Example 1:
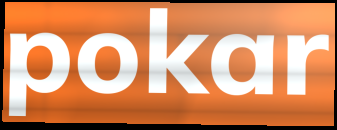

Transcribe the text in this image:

pokar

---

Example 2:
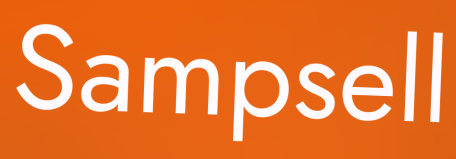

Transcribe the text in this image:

Sampsell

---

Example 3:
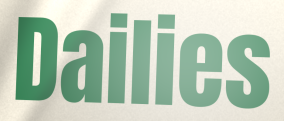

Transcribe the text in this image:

Dailies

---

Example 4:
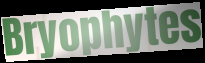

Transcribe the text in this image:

Bryophytes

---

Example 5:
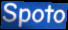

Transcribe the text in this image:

Spoto